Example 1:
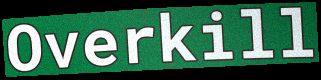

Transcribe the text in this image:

Overkill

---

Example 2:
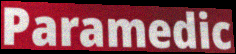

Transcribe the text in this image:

Paramedic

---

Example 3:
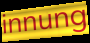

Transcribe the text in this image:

innung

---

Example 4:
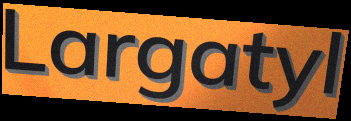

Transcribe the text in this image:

Largatyl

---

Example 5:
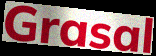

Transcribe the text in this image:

Grasal